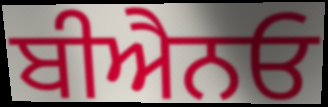
ਬੀਐਨਓ